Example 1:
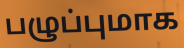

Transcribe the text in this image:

பழுப்புமாக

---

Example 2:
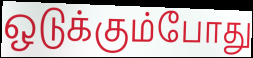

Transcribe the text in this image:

ஒடுக்கும்போது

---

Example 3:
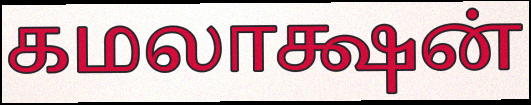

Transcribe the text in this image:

கமலாக்ஷன்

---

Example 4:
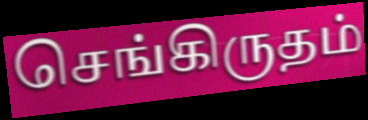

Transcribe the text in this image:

செங்கிருதம்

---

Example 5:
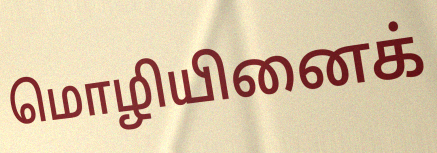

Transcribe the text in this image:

மொழியினைக்